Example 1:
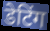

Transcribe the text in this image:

डेटिंग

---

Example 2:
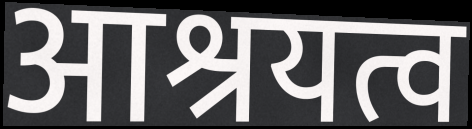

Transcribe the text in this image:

आश्रयत्व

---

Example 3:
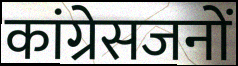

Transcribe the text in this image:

कांग्रेसजनों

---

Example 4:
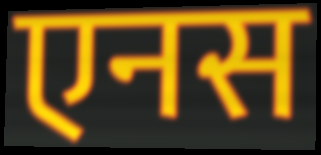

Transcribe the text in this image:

एनस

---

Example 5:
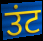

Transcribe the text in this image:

उंट